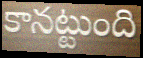
కానట్టుంది